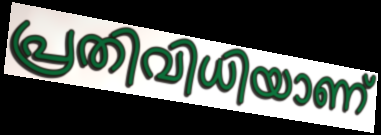
പ്രതിവിധിയാണ്